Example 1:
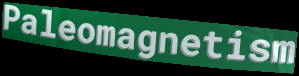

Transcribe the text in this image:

Paleomagnetism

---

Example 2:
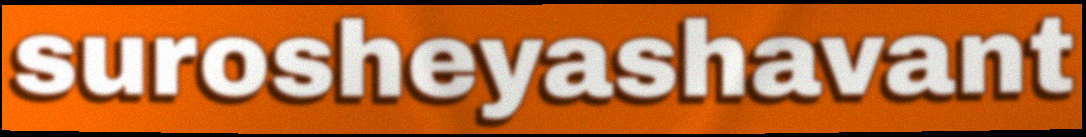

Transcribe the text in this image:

surosheyashavant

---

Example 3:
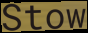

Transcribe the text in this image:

Stow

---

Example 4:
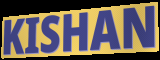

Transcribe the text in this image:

KISHAN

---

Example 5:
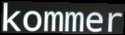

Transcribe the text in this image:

kommer